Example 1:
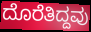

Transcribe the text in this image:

ದೊರೆತಿದ್ದವು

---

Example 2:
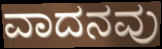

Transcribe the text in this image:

ವಾದನವು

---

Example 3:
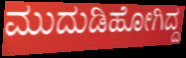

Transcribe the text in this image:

ಮುದುಡಿಹೋಗಿದ್ದ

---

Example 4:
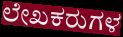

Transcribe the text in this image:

ಲೇಖಕರುಗಳ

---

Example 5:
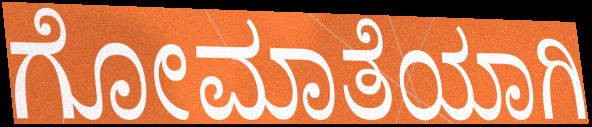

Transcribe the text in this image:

ಗೋಮಾತೆಯಾಗಿ